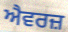
ਐਵਰਜ਼